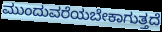
ಮುಂದುವರೆಯಬೇಕಾಗುತ್ತದೆ